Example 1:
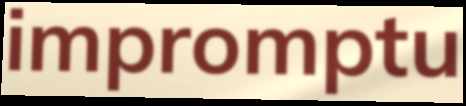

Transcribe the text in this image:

impromptu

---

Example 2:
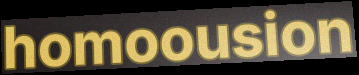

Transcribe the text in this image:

homoousion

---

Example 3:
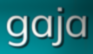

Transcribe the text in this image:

gaja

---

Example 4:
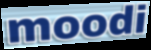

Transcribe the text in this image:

moodi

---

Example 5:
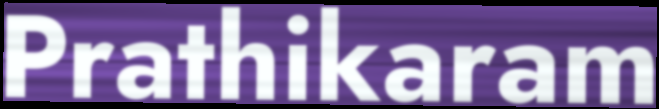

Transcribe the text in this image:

Prathikaram